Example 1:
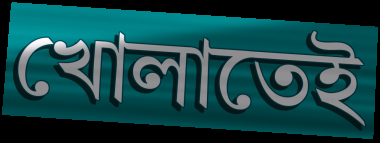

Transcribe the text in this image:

খোলাতেই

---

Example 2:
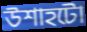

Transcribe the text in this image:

উশাহটো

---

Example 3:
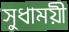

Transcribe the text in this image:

সুধাময়ী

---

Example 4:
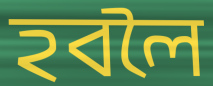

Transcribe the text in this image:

হবলৈ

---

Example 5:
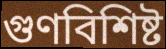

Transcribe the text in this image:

গুণবিশিষ্ট